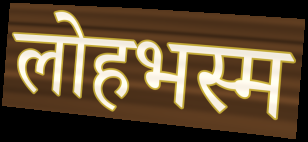
लोहभस्म